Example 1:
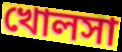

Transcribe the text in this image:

খোলসা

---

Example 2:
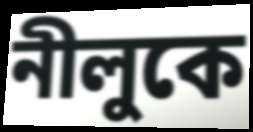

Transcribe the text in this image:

নীলুকে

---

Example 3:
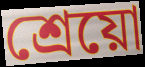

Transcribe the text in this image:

শ্রেয়ো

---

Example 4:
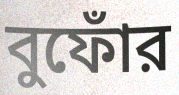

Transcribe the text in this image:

বুফোঁর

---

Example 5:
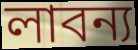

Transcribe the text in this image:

লাবন্য